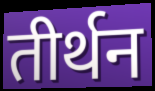
तीर्थन